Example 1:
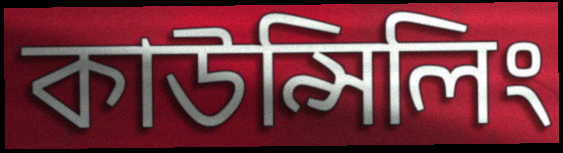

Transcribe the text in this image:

কাউন্সিলিং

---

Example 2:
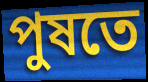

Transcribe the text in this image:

পুষতে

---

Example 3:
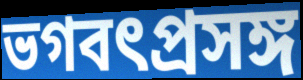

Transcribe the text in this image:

ভগবৎপ্রসঙ্গ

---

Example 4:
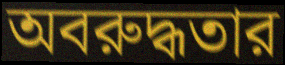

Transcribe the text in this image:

অবরুদ্ধতার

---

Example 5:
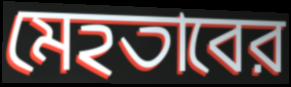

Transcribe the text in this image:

মেহতাবের